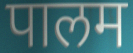
पालम